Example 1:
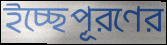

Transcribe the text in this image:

ইচ্ছেপূরণের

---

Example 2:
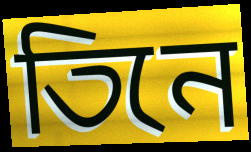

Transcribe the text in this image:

তিনে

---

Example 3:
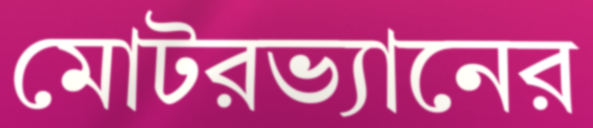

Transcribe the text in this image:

মোটরভ্যানের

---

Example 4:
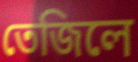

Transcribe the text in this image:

তেজিলে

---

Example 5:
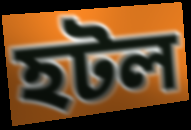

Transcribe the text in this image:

হটল